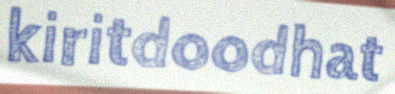
kiritdoodhat